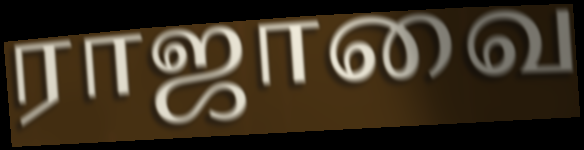
ராஜாவை